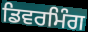
ਡਿਵਰਮਿੰਗ